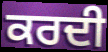
ਕਰਦੀ